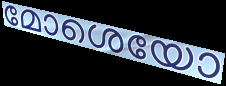
മോശെയോ